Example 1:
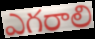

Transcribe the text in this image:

ఎగరాలి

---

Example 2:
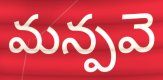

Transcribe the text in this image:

మన్పవె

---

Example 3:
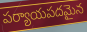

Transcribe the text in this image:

పర్యాయపదమైన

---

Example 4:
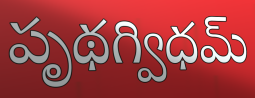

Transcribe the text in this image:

పృథగ్విధమ్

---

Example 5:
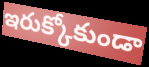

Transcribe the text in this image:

ఇరుక్కోకుండా